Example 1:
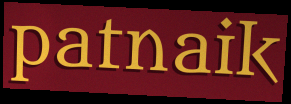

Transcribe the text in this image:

patnaik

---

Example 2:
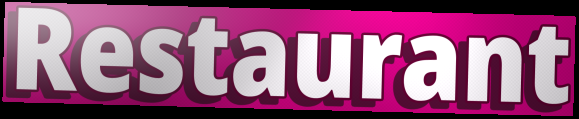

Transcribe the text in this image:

Restaurant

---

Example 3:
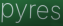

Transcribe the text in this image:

pyres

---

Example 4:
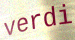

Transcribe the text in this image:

verdi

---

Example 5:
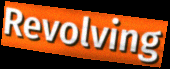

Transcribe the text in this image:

Revolving